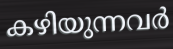
കഴിയുന്നവർ